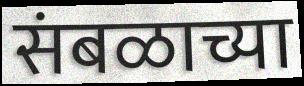
संबळाच्या